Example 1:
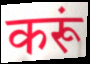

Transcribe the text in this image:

करूं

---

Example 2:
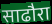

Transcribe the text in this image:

साढौरा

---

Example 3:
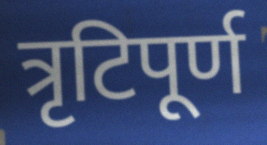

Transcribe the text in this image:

त्रृटिपूर्ण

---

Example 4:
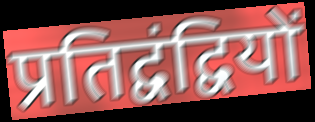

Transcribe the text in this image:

प्रतिद्वंद्वियों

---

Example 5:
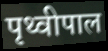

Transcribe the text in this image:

पृथ्वीपाल